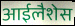
आईलैशेस